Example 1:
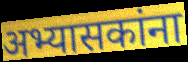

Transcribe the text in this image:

अभ्यासकांना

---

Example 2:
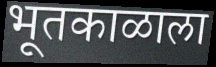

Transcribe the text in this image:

भूतकाळाला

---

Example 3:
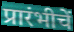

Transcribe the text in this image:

प्रारंभीचें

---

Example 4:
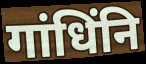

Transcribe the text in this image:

गांधिंनि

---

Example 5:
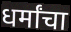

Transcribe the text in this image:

धर्मांचा